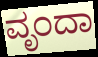
ವೃಂದಾ